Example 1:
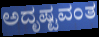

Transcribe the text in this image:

ಅದೃಷ್ಟವಂತ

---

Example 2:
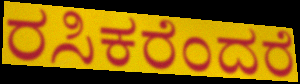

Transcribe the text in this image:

ರಸಿಕರೆಂದರೆ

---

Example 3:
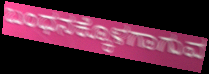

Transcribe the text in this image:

ಬಂಧನಕ್ಕೊಳಗಾಗುವ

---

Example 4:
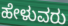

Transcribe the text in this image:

ಹೇಳುವರು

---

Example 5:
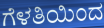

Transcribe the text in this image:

ಗೆಳತಿಯಿಂದ